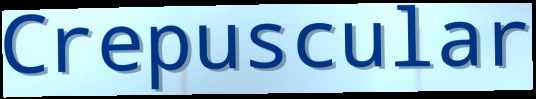
Crepuscular